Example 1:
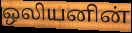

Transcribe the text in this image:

ஒலியனின்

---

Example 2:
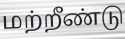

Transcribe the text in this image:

மற்றீண்டு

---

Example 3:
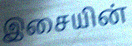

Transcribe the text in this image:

இசையின்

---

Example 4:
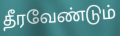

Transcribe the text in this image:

தீரவேண்டும்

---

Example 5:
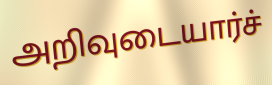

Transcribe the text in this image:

அறிவுடையார்ச்